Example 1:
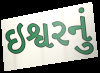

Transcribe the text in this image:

ઇશ્વરનું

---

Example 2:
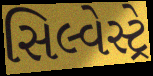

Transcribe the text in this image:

સિલ્વેસ્ટ્રે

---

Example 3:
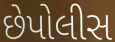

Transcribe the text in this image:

છેપોલીસ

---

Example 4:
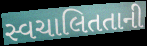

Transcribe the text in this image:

સ્વચાલિતતાની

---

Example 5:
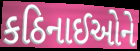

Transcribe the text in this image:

કઠિનાઈઓને